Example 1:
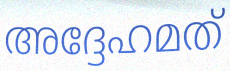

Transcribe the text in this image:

അദ്ദേഹമത്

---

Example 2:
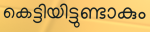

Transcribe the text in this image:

കെട്ടിയിട്ടുണ്ടാകും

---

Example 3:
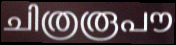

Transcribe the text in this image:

ചിത്രരൂപൗ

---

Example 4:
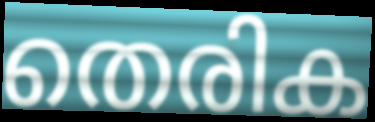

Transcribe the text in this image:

തെരിക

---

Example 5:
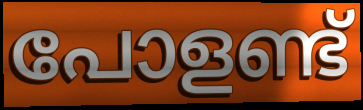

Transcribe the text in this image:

പോളണ്ട്